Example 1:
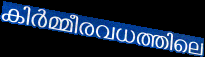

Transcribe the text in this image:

കിർമ്മീരവധത്തിലെ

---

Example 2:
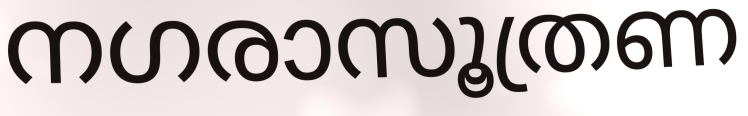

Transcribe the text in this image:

നഗരാസൂത്രണ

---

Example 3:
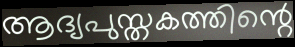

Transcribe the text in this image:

ആദ്യപുസ്തകത്തിന്റെ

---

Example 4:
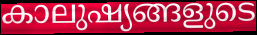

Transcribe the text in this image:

കാലുഷ്യങ്ങളുടെ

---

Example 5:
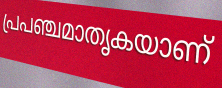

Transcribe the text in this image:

പ്രപഞ്ചമാതൃകയാണ്